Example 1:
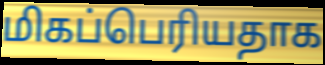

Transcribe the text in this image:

மிகப்பெரியதாக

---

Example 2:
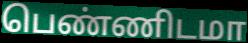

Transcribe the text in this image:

பெண்ணிடமா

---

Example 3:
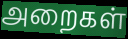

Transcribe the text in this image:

அறைகள்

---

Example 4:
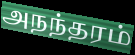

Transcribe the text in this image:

அநந்தரம்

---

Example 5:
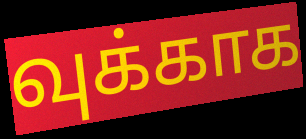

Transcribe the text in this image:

வுக்காக